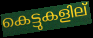
കെട്ടുകളില്